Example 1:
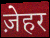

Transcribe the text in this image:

ज़ेहर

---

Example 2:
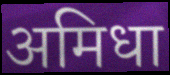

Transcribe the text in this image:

अमिधा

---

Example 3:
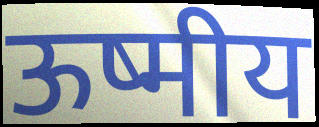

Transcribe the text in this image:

ऊष्मीय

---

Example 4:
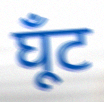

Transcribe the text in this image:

घूँट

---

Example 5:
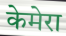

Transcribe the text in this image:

केमेरा